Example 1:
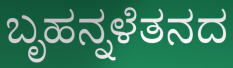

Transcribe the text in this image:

ಬೃಹನ್ನಳೆತನದ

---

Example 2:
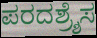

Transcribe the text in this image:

ಪರದಶ್ರ್ಶೆಸ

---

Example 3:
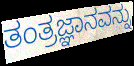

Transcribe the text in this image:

ತಂತ್ರಜ್ಞಾನವನ್ನು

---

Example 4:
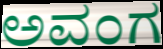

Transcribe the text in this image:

ಅವಂಗ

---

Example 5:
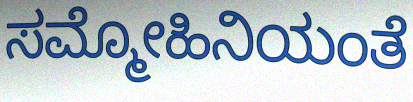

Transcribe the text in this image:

ಸಮ್ಮೋಹಿನಿಯಂತೆ